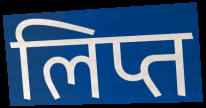
लिप्त